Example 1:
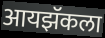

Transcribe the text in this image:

आयझॅकला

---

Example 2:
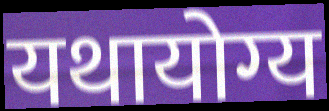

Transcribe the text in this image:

यथायोग्य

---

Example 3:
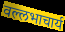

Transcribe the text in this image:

वल्लभाचार्य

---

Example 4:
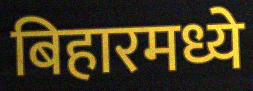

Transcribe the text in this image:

बिहारमध्ये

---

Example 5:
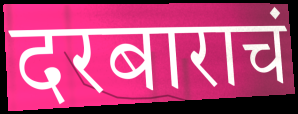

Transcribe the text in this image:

दरबाराचं